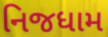
નિજધામ